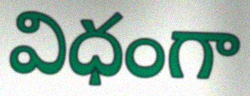
విధంగా